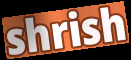
shrish